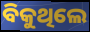
ବିକୁଥିଲେ